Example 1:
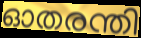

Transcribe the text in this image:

ഓതരന്തി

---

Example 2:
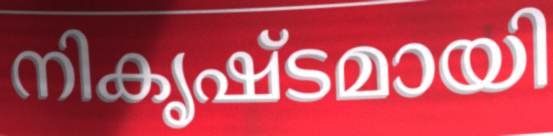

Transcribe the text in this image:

നികൃഷ്ടമായി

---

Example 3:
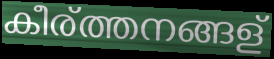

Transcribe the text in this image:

കീര്ത്തനങ്ങള്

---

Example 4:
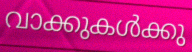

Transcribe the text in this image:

വാക്കുകൾക്കു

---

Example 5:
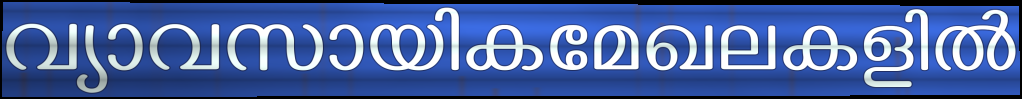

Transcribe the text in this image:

വ്യാവസായികമേഖലകളിൽ